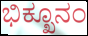
ಭಿಕ್ಖೂನಂ